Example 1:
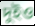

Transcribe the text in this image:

দুইও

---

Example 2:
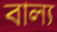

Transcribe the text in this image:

বাল্য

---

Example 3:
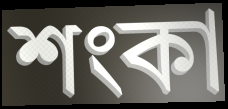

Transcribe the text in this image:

শংকা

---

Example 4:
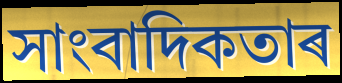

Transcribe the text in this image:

সাংবাদিকতাৰ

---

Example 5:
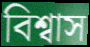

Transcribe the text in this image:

বিশ্বাস